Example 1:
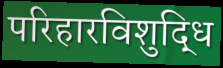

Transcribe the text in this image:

परिहारविशुद्धि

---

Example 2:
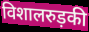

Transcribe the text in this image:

विशालरुड़की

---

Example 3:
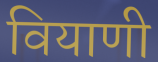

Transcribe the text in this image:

वियाणी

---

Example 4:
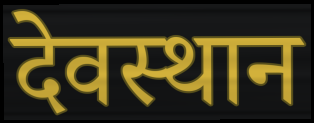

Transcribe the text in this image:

देवस्थान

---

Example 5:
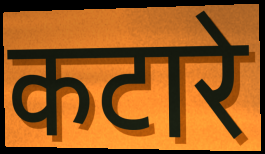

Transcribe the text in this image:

कटारे